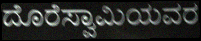
ದೊರೆಸ್ವಾಮಿಯವರ